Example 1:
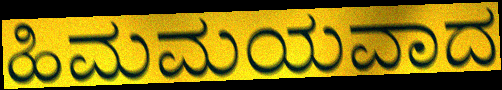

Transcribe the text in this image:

ಹಿಮಮಯವಾದ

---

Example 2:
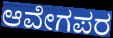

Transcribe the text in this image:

ಆವೇಗಪರ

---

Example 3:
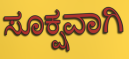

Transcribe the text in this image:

ಸೂಕ್ಷವಾಗಿ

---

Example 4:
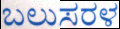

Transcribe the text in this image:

ಬಲುಸರಳ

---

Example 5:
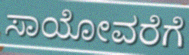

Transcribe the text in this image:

ಸಾಯೋವರೆಗೆ